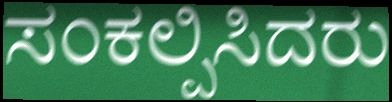
ಸಂಕಲ್ಪಿಸಿದರು